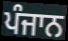
ਪੰਜਾਨ